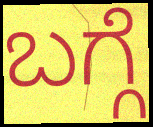
ಬಗ್ಗೆ